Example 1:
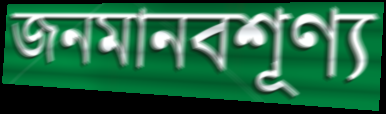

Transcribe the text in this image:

জনমানবশূণ্য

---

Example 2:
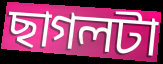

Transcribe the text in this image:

ছাগলটা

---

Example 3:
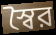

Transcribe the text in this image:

স্বৈর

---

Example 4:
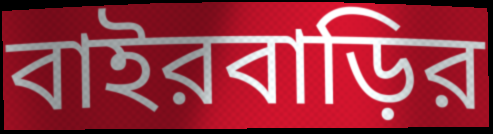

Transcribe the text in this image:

বাইরবাড়ির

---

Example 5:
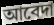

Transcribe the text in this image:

আবেদা